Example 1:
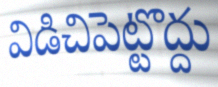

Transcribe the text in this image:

విడిచిపెట్టొద్దు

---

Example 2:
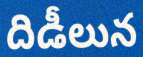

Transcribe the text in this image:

దిడీలున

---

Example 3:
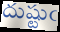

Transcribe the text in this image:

దుష్టుఁ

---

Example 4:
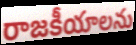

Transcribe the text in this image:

రాజకీయాలను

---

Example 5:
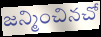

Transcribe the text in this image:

జన్మించినచో